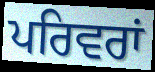
ਪਰਿਵਰਾਂ